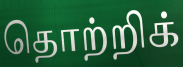
தொற்றிக்